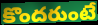
కొందరుంటే